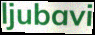
ljubavi